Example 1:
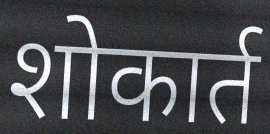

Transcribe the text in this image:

शोकार्त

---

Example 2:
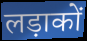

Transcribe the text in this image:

लड़ाकों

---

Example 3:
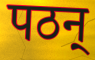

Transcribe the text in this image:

पठन्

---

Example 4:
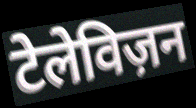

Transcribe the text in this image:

टेलेविज़न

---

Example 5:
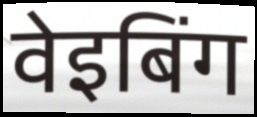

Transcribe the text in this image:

वेइबिंग